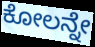
ಕೋಲನ್ನೇ